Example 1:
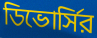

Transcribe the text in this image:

ডিভোর্সির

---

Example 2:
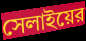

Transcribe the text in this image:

সেলাইয়ের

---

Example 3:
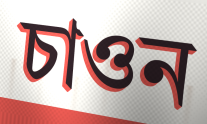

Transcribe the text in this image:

চাওন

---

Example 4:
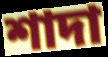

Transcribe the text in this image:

শাদা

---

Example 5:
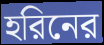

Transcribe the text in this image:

হরিনের